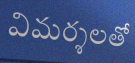
విమర్శలతో